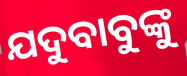
ଯଦୁବାବୁଙ୍କୁ